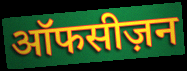
ऑफसीज़न